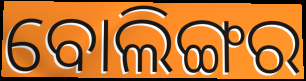
ବୋଲିଙ୍ଗର